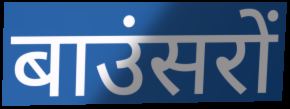
बाउंसरों